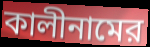
কালীনামের